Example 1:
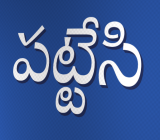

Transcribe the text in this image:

పట్టేసి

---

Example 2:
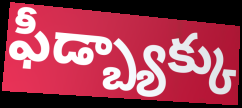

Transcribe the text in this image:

ఫీడ్బ్యాక్కు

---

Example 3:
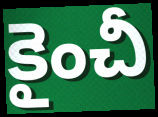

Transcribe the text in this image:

కైంచీ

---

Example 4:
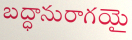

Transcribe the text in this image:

బద్ధానురాగయై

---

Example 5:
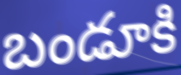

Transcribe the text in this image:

బండూకి